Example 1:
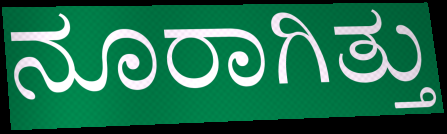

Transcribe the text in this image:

ನೂರಾಗಿತ್ತು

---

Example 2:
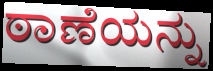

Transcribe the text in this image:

ಠಾಣೆಯನ್ನು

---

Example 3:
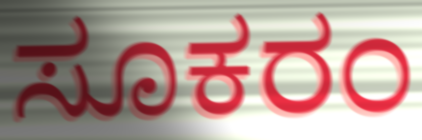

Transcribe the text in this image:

ಸೂಕರಂ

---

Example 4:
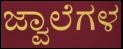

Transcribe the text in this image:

ಜ್ವಾಲೆಗಳ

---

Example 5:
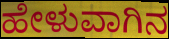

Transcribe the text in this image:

ಹೇಳುವಾಗಿನ